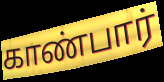
காண்பார்